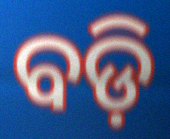
ବଡ଼ି